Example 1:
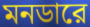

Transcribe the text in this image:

মনডারে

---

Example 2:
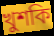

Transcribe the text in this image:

খুশকি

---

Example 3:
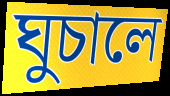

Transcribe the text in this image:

ঘুচালে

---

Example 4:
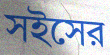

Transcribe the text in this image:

সইসের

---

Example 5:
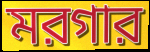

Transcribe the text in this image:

মরগার